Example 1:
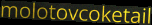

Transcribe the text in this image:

molotovcoketail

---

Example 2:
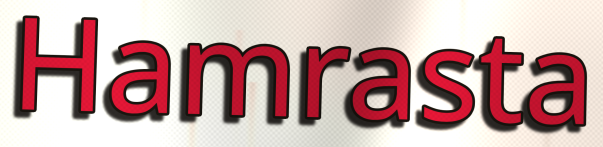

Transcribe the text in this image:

Hamrasta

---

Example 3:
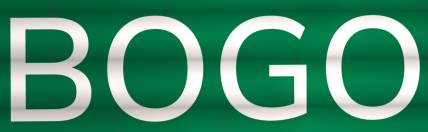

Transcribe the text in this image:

BOGO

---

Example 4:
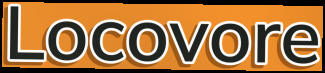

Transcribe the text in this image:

Locovore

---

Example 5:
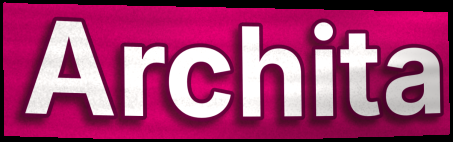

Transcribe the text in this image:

Archita